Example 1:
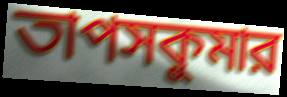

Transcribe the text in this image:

তাপসকুমার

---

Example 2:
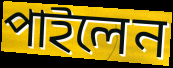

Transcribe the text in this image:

পাইলেন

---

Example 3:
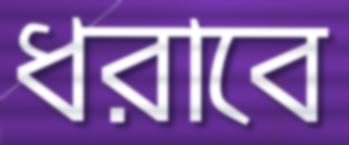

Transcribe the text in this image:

ধরাবে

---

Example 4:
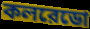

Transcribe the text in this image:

কলরেডো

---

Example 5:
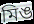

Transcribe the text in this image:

মিঙ